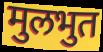
मुलभुत